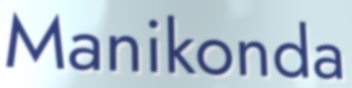
Manikonda